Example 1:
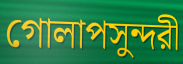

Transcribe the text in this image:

গোলাপসুন্দরী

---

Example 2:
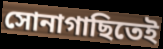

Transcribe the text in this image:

সোনাগাছিতেই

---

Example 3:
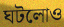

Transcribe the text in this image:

ঘটলোও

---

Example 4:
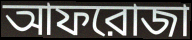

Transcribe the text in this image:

আফরোজা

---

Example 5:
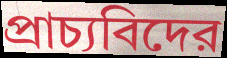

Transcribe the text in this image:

প্রাচ্যবিদের